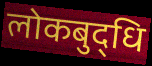
लोकबुद्धि